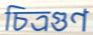
চিত্রগুণ